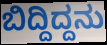
ಬಿದ್ದಿದ್ದನು